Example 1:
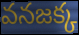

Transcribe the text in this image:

వనజక్క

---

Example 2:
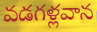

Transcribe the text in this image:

వడగళ్లవాన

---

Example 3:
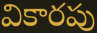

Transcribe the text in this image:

వికారపు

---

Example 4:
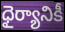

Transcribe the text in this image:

ధైర్యానికీ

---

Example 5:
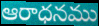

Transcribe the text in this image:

ఆరాధనము